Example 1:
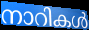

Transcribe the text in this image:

നാറികൾ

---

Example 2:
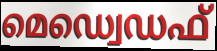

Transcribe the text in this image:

മെഡ്വെഡഫ്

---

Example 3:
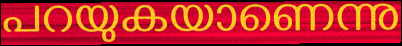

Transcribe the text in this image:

പറയുകയാണെന്നു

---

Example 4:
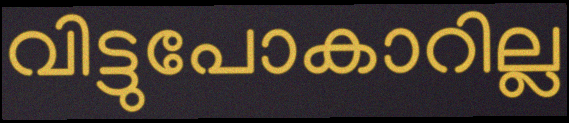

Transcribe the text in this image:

വിട്ടുപോകാറില്ല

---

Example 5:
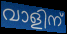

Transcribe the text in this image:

വാളിന്